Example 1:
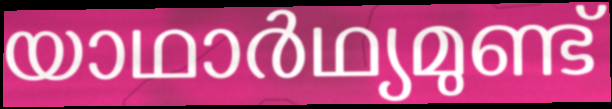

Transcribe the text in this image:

യാഥാർഥ്യമുണ്ട്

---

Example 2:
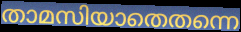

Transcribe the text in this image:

താമസിയാതെതന്നെ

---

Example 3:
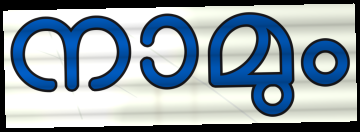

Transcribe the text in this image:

നാമും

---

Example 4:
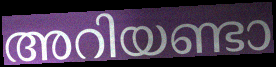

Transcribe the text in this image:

അറിയണ്ടാ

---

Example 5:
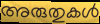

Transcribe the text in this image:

അരുതുകൾ